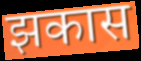
झकास